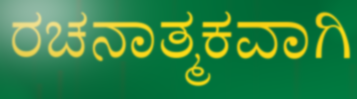
ರಚನಾತ್ಮಕವಾಗಿ